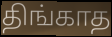
திங்காத